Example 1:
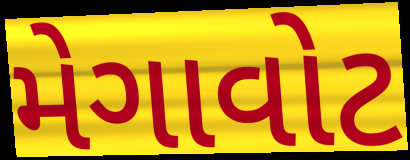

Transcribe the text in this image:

મેગાવોટ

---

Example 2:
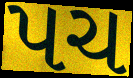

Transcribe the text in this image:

પચ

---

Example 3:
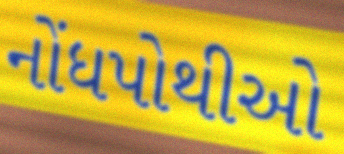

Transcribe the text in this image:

નોંધપોથીઓ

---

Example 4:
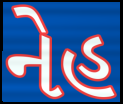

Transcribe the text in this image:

નેહ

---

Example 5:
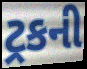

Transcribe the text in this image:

ટ્રકની